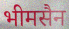
भीमसैन